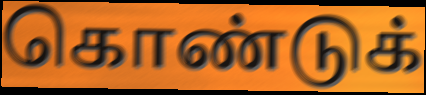
கொண்டுக்